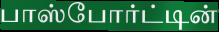
பாஸ்போர்ட்டின்